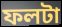
ফলটা